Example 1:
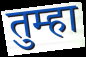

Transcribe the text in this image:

तुम्हा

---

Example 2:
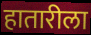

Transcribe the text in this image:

हातारीला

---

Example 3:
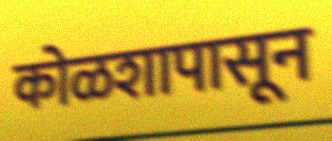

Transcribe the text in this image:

कोळशापासून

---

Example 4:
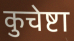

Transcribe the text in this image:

कुचेष्टा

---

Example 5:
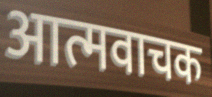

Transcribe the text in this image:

आत्मवाचक